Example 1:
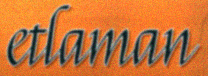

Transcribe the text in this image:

etlaman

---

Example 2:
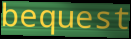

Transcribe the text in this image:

bequest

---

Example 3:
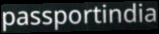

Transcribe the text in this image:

passportindia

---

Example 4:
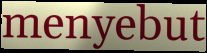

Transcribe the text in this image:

menyebut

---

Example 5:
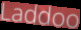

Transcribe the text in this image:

Laddoo